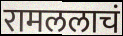
रामललाचं